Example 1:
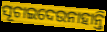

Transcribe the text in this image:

ସୂଚାଇଦେଉନାହାନ୍ତି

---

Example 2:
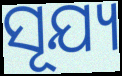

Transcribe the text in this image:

ସୂଯ୍ୟ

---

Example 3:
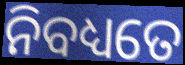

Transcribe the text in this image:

ନିବଧ୍ୟତେ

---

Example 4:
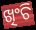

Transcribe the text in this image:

ଖିଂଚି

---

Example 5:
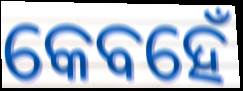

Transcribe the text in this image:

କେବହେଁ